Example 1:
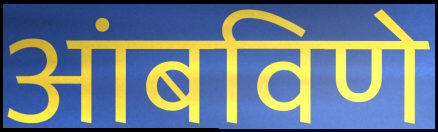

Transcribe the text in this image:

आंबविणे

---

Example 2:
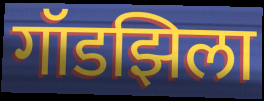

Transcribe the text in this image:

गॉडझिला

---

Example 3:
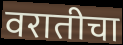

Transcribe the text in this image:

वरातीचा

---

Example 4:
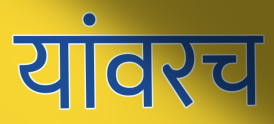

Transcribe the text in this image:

यांवरच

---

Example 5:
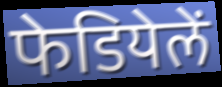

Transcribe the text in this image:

फेडियेलें